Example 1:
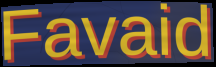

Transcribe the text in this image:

Favaid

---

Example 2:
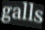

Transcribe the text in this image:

galls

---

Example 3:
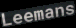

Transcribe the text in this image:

Leemans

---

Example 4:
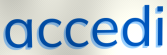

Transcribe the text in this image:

accedi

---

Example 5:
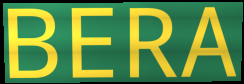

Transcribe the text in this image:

BERA